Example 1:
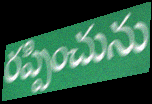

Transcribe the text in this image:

రప్పించును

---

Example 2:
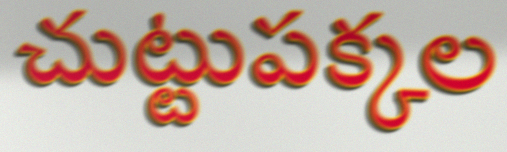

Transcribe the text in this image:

చుట్టుపక్కల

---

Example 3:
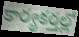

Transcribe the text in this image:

కార్యకర్తల్లో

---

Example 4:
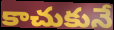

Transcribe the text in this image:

కాచుకునే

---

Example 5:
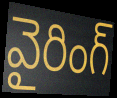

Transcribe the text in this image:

వైరింగ్